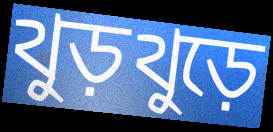
থুড়থুড়ে